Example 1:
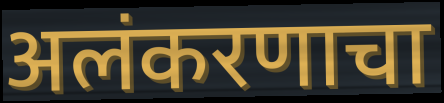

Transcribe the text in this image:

अलंकरणाचा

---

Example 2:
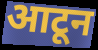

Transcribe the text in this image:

आटून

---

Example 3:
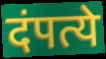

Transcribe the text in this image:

दंपत्ये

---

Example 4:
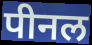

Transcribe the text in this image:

पीनल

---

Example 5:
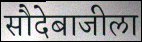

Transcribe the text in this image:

सौदेबाजीला